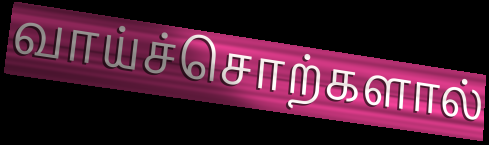
வாய்ச்சொற்களால்